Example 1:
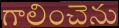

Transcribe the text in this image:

గాలించెను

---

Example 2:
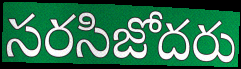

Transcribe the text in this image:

సరసిజోదరు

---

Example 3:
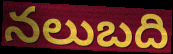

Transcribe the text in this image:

నలుబది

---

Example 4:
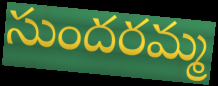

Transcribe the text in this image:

సుందరమ్మ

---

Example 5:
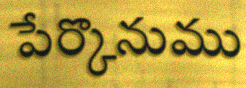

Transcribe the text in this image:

పేర్కొనుము